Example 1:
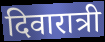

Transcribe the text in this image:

दिवारात्री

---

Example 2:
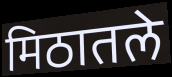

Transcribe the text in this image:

मिठातले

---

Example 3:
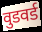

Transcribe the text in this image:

वुडवर्ड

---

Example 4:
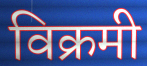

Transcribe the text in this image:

विक्रमी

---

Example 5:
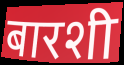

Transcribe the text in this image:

बारशी